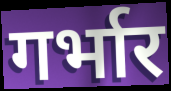
गर्भार